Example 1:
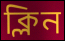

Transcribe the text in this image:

ক্লিন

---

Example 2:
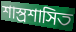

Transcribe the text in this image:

শাস্ত্রশাসিত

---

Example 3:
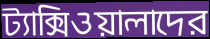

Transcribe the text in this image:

ট্যাক্সিওয়ালাদের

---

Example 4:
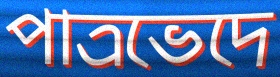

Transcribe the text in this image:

পাত্রভেদে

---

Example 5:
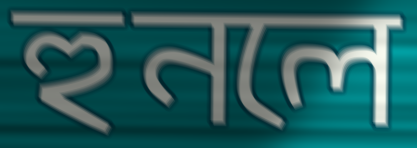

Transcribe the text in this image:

হুনলে